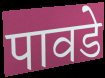
पावडे